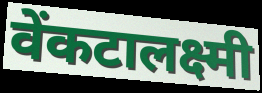
वेंकटालक्ष्मी